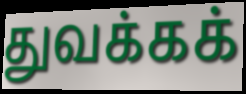
துவக்கக்